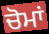
ਚੋਮਾਂ